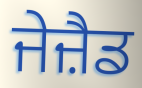
ਜੇਜ਼ੈਡ